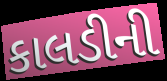
કાલડીની